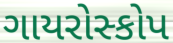
ગાયરોસ્કોપ